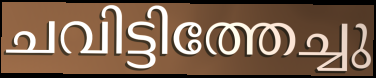
ചവിട്ടിത്തേച്ചു